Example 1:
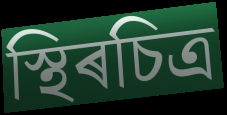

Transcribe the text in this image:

স্থিৰচিত্ৰ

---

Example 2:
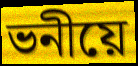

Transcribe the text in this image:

ভনীয়ে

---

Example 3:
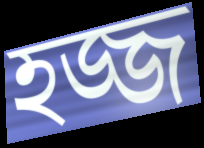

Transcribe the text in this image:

হজ্জ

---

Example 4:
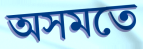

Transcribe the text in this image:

অসমতে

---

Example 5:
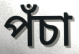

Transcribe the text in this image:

পঁচা